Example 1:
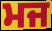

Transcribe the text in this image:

ਮਜ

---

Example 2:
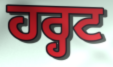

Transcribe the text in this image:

ਹਰ੍ਹਟ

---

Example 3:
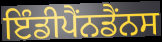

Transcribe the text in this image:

ਇੰਡੀਪੈਂਨਡੈਂਨਸ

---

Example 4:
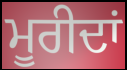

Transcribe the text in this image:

ਮੂਰੀਦਾਂ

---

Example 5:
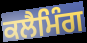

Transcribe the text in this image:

ਕਲੈਮਿੰਗ